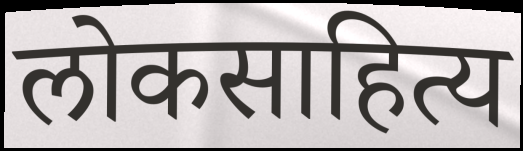
लोकसाहित्य